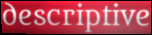
descriptive